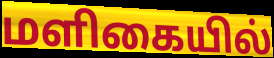
மளிகையில்